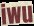
iwu